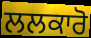
ਲਲਕਾਰੋ